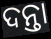
ଦନ୍ତା